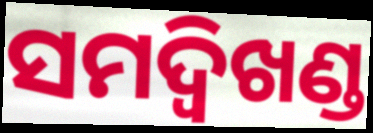
ସମଦ୍ବିଖଣ୍ଡ